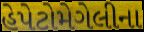
હેપેટોમેગેલીના